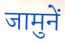
जामुनें